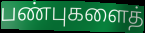
பண்புகளைத்